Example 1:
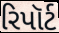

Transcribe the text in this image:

રિપૉર્ટ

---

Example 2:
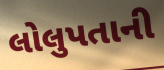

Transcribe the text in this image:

લોલુપતાની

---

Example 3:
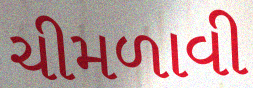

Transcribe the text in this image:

ચીમળાવી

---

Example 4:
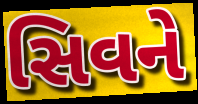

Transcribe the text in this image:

સિવને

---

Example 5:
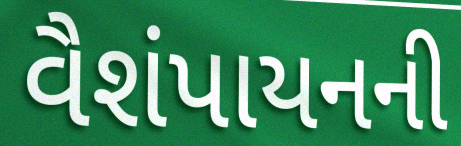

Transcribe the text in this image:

વૈશંપાયનની